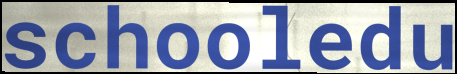
schooledu